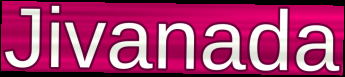
Jivanada